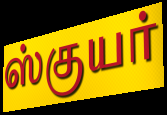
ஸ்குயர்